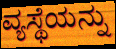
ವ್ಯಸ್ಥೆಯನ್ನು